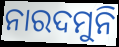
ନାରଦମୁନି